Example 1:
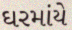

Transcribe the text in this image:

ઘરમાંયે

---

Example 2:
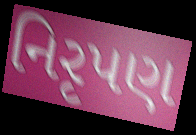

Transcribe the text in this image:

નિરૃપણ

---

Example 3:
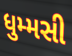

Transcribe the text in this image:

ધુમ્મસી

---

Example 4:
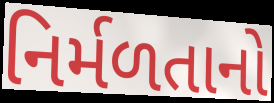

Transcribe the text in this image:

નિર્મળતાનો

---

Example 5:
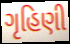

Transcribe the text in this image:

ગૃહિણી